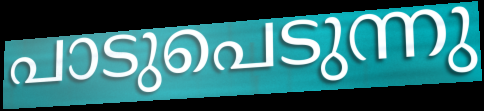
പാടുപെടുന്നു